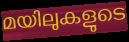
മയിലുകളുടെ